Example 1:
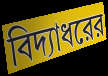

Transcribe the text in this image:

বিদ্যাধরের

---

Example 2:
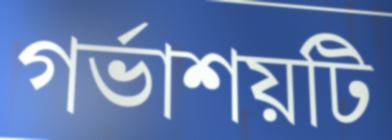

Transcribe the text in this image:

গর্ভাশয়টি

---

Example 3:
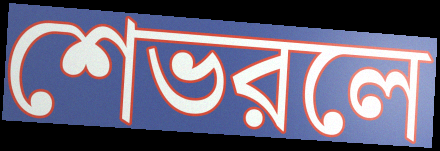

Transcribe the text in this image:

শেভরলে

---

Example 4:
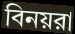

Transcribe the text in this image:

বিনয়রা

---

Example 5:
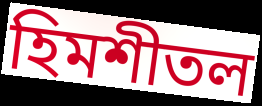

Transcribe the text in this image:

হিমশীতল